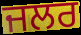
ਜਲਰ